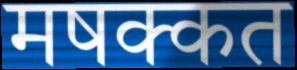
मषक्कत